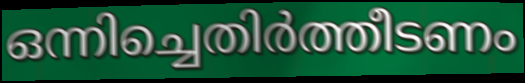
ഒന്നിച്ചെതിർത്തീടണം